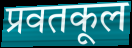
प्रवतकूल